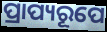
ପ୍ରାପ୍ୟରୂପେ